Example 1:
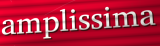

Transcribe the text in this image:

amplissima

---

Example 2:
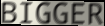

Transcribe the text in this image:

BIGGER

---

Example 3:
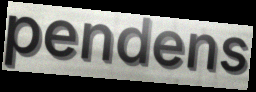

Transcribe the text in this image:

pendens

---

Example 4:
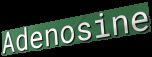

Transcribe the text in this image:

Adenosine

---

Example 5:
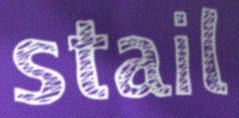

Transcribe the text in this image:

stail